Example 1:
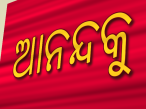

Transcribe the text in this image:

ଆନନ୍ଦକୁ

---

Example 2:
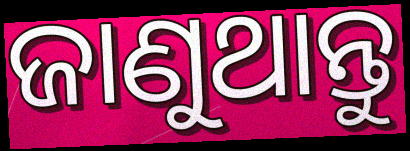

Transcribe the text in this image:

ଜାଣୁଥାନ୍ତୁ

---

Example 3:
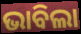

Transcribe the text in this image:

ଭାବିଲା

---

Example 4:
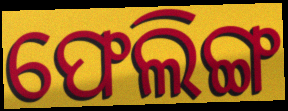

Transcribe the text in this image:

ଫେଲିଙ୍ଗ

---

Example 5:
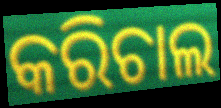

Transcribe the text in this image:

କରିଚାଲ